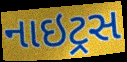
નાઇટ્રસ